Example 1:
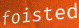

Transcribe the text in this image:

foisted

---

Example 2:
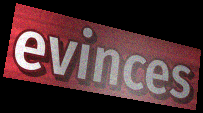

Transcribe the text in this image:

evinces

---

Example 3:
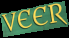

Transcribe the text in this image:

VEER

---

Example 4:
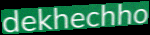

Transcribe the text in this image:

dekhechho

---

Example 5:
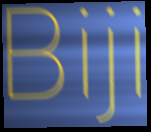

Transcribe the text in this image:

Biji